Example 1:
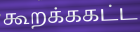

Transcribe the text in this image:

கூறக்ககட்ட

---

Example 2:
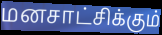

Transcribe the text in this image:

மனசாட்சிக்கும்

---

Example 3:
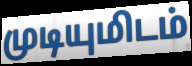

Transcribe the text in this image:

முடியுமிடம்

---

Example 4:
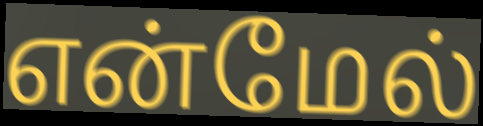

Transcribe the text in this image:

என்மேல்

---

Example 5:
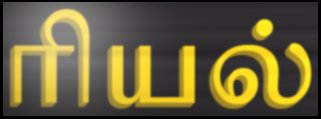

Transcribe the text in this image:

ரியல்